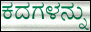
ಕದಗಳನ್ನು